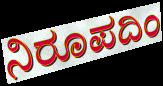
ನಿರೂಪದಿಂ